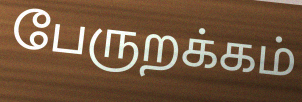
பேருறக்கம்